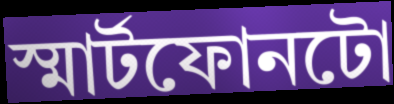
স্মাৰ্টফোনটো